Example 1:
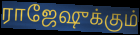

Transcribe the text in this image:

ராஜேஷுக்கும்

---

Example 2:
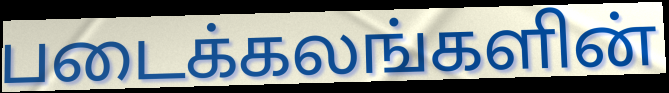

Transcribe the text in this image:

படைக்கலங்களின்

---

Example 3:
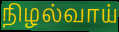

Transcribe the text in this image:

நிழல்வாய்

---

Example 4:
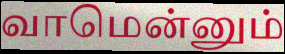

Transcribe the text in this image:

வாமென்னும்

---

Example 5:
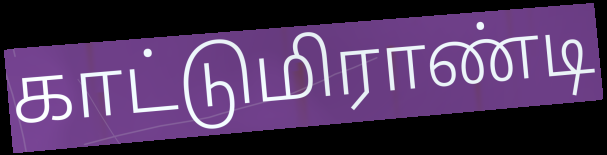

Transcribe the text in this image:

காட்டுமிராண்டி